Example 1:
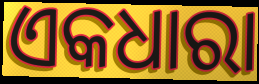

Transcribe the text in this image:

ଏକଧାରା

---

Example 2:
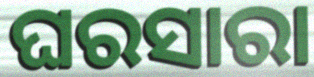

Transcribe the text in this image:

ଘରସାରା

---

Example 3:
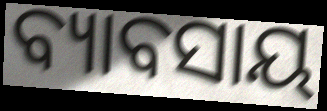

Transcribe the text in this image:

ବ୍ୟାବସାୟ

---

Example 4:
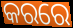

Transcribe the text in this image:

କରରେ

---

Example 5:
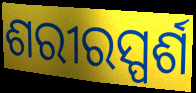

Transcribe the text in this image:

ଶରୀରସ୍ପର୍ଶ